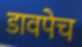
डावपेच